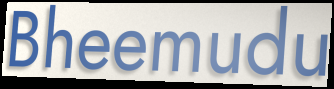
Bheemudu